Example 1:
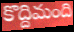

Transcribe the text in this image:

కొద్దిమంది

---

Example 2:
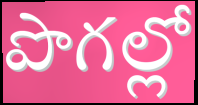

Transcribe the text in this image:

పొగల్లో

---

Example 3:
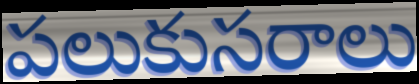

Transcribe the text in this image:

పలుకుసరాలు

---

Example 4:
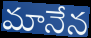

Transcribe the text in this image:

మానేన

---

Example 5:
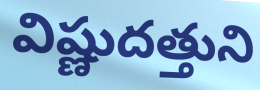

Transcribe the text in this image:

విష్ణుదత్తుని